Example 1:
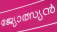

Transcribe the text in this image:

ജ്യോത്സ്യൻ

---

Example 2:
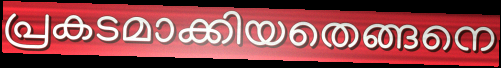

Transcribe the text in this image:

പ്രകടമാക്കിയതെങ്ങനെ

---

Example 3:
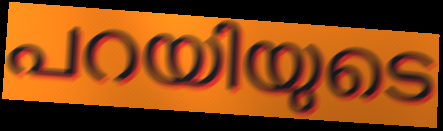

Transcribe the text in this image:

പറയിയുടെ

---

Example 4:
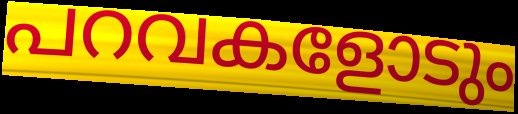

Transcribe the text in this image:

പറവകളോടും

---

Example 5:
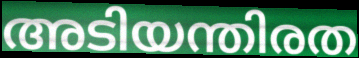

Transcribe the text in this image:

അടിയന്തിരത